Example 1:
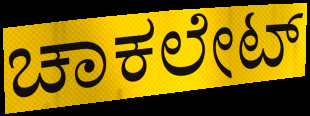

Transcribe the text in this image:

ಚಾಕಲೇಟ್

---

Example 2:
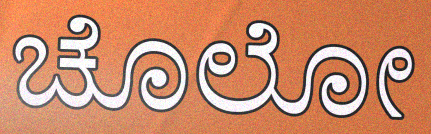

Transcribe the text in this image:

ಚೊಲೋ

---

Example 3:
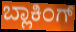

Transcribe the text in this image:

ಬ್ಲಾಕಿಂಗ್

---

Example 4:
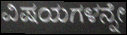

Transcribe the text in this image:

ವಿಷಯಗಳನ್ನೇ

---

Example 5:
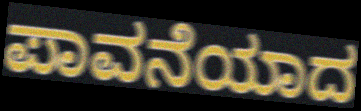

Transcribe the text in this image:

ಪಾವನೆಯಾದ